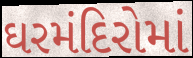
ઘરમંદિરોમાં